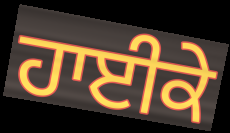
ਹਾਈਕੇ